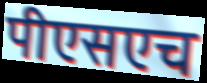
पीएसएच